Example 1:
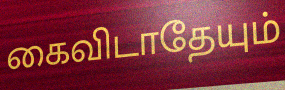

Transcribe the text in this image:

கைவிடாதேயும்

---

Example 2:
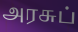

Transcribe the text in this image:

அரசுப்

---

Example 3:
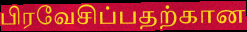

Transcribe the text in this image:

பிரவேசிப்பதற்கான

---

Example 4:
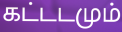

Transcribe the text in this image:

கட்டடமும்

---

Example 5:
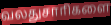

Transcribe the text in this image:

வலதுசாரிகளை